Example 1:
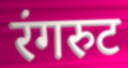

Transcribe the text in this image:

रंगरुट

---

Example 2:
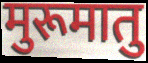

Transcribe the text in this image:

मुरूमातु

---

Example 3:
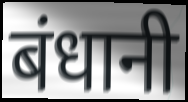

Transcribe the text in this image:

बंधानी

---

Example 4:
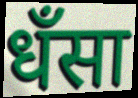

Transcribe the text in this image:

धँसा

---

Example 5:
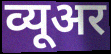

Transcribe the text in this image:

व्यूअर